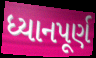
ધ્યાનપૂર્ણ